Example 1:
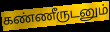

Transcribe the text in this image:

கண்ணீருடனும்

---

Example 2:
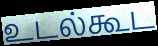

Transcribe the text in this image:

உடல்கூட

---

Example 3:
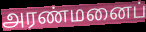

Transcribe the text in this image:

அரண்மனைப்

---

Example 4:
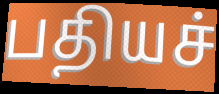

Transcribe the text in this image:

பதியச்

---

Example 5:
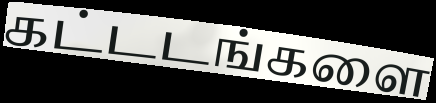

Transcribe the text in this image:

கட்டடங்களை